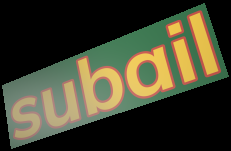
subail